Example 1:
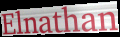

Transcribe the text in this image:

Elnathan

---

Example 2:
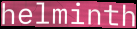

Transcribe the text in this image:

helminth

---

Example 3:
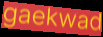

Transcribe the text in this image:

gaekwad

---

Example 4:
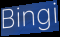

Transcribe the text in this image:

Bingi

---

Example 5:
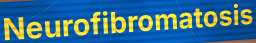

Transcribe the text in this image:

Neurofibromatosis